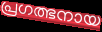
പ്രഗത്ഭനായ